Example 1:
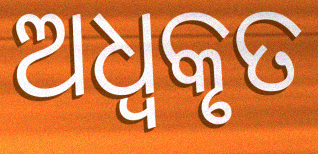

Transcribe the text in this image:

ଅଧ୍ବକୃତ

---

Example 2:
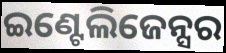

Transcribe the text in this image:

ଇଣ୍ଟେଲିଜେନ୍ସର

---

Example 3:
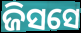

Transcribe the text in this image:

ଜିସସେ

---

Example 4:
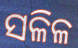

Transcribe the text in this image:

ସଳିଳ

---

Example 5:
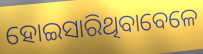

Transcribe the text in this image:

ହୋଇସାରିଥିବାବେଳେ